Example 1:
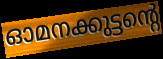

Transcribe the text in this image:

ഓമനക്കുട്ടന്റെ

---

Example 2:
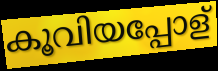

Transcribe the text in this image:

കൂവിയപ്പോള്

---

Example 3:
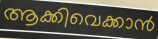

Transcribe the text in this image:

ആക്കിവെക്കാൻ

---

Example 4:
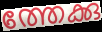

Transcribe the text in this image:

ത്തേക്കു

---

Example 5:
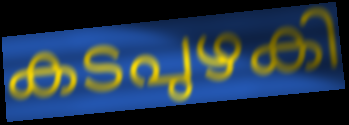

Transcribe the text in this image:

കടപുഴകി